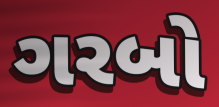
ગરબો